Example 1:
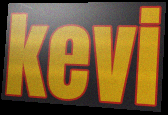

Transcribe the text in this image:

kevi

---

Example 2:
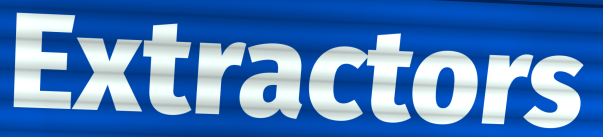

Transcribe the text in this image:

Extractors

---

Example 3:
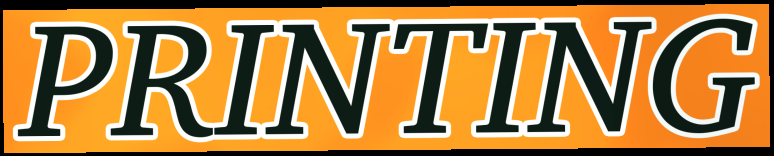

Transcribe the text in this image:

PRINTING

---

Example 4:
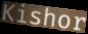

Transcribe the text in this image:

Kishor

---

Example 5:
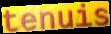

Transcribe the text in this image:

tenuis